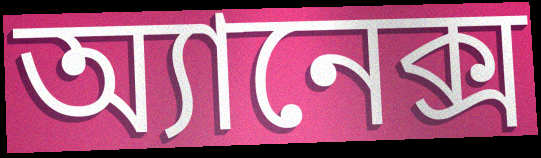
অ্যানেক্স